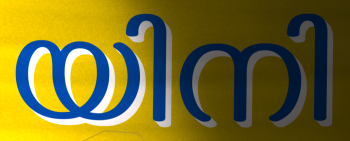
യിനി